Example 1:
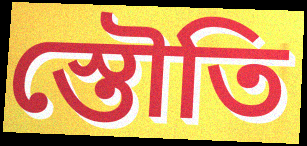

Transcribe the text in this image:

স্তৌতি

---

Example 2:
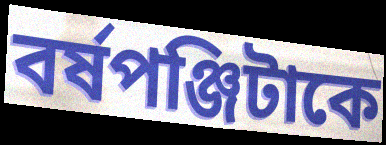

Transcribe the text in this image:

বর্ষপঞ্জিটাকে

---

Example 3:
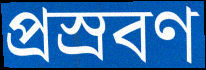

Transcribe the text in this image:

প্রস্রবণ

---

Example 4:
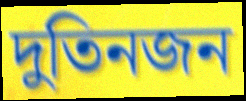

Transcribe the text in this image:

দুতিনজন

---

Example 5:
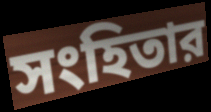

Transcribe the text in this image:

সংহিতার